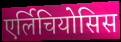
एर्लिचियोसिस